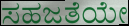
ಸಹಜತೆಯೇ